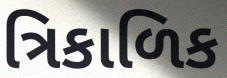
ત્રિકાળિક